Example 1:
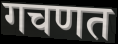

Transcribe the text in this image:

गचणत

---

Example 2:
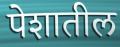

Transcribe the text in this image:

पेशातील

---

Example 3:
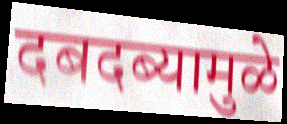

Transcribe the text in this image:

दबदब्यामुळे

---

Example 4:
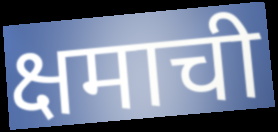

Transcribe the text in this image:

क्षमाची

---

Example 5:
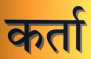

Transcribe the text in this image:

कर्ता